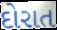
દોરાત